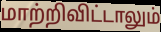
மாற்றிவிட்டாலும்